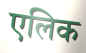
एलिक